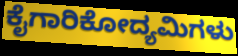
ಕೈಗಾರಿಕೋದ್ಯಮಿಗಳು